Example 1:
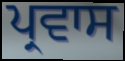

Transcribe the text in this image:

ਪ੍ਰਵਾਸ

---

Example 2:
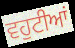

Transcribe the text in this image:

ਵਹੁਟੀਆਂ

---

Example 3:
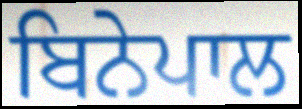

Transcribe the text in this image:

ਬਿਨੇਪਾਲ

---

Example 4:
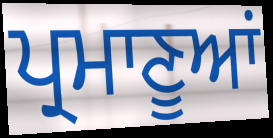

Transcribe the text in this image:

ਪ੍ਰਮਾਣੂਆਂ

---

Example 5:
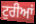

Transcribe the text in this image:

ਟੁਰੀਆਂ